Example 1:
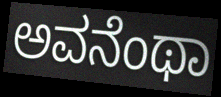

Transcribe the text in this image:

ಅವನೆಂಥಾ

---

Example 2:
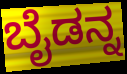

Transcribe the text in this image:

ಬೈಡನ್ನ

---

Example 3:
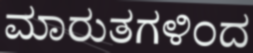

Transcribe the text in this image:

ಮಾರುತಗಳಿಂದ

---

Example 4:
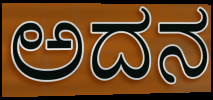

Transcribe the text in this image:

ಅದನ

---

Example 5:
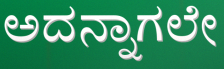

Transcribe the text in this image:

ಅದನ್ನಾಗಲೇ